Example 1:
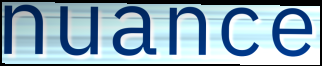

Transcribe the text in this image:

nuance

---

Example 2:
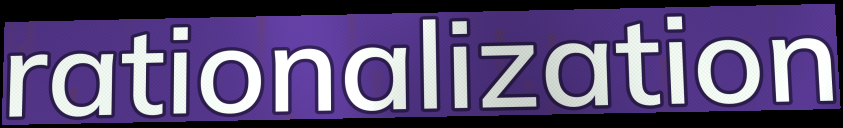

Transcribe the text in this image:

rationalization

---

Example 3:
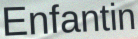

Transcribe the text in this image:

Enfantin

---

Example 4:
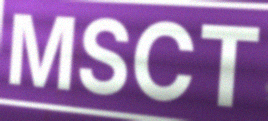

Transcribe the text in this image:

MSCT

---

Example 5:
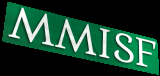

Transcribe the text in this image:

MMISF